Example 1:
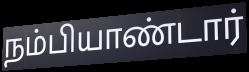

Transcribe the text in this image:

நம்பியாண்டார்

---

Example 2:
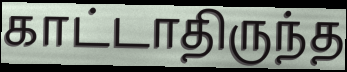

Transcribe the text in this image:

காட்டாதிருந்த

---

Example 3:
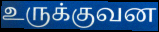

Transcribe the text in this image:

உருக்குவன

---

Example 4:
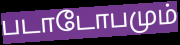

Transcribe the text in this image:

படாடோபமும்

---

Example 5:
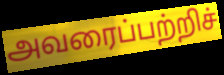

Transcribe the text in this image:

அவரைப்பற்றிச்